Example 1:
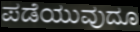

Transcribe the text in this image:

ಪಡೆಯುವುದೂ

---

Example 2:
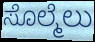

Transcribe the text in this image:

ಸೊಲ್ಮೆಲು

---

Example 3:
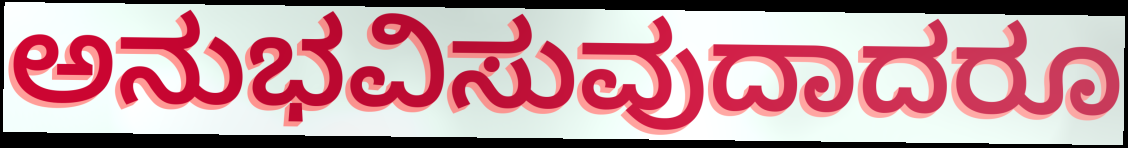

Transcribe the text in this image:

ಅನುಭವಿಸುವುದಾದರೂ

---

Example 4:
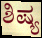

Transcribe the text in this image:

ಶಿಷ್ಯ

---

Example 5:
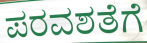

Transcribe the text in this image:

ಪರವಶತೆಗೆ